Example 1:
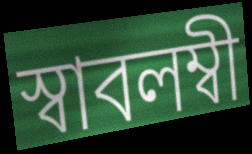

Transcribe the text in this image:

স্বাবলম্বী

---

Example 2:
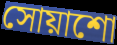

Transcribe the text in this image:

সোয়াশো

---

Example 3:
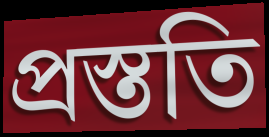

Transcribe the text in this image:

প্রস্ততি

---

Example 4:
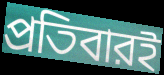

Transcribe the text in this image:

প্রতিবারই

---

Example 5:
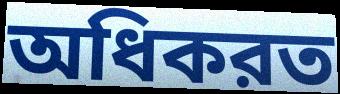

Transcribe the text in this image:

অধিকরত